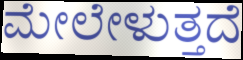
ಮೇಲೇಳುತ್ತದೆ